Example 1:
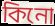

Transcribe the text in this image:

কিনো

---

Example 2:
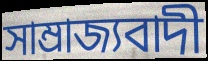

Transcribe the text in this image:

সাম্ৰাজ্যবাদী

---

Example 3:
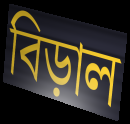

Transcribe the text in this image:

বিড়াল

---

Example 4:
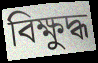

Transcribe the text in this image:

বিক্ষুদ্ধ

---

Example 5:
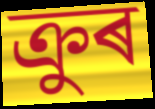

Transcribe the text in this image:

ক্ৰুৰ